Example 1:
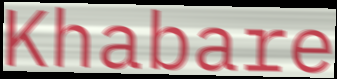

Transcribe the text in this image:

Khabare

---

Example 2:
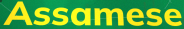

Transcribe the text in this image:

Assamese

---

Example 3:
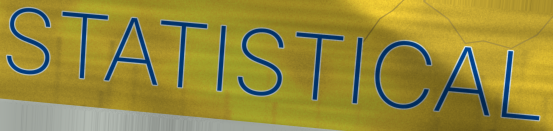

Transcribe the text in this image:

STATISTICAL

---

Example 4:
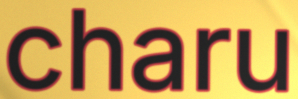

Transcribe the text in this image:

charu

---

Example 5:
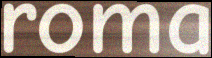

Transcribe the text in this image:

roma